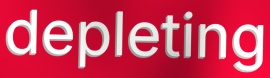
depleting